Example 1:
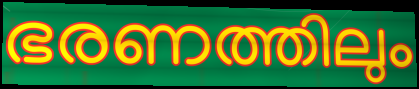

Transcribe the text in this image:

ഭരണത്തിലും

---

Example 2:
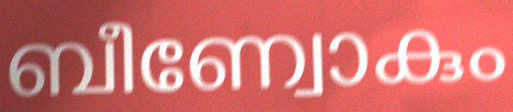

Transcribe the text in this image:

ബീണ്വോകും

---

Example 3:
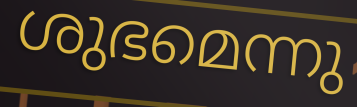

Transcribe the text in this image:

ശുഭമെന്നു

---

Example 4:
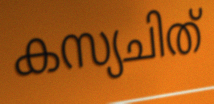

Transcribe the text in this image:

കസ്യചിത്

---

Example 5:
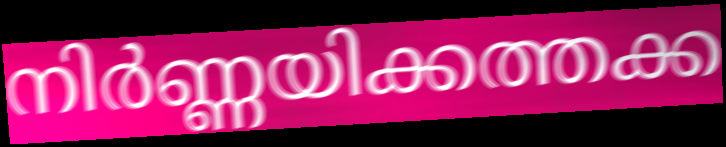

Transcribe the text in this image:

നിർണ്ണയിക്കത്തക്ക